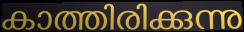
കാത്തിരിക്കുന്നു